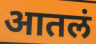
आतलं